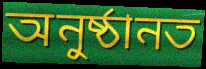
অনুষ্ঠানত